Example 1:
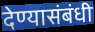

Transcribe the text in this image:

देण्यासंबंधी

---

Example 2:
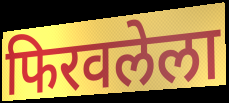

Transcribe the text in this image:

फिरवलेला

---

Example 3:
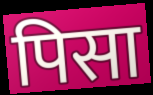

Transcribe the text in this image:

पिसा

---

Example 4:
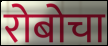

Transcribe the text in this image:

रोबोचा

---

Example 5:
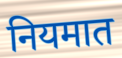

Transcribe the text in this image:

नियमात